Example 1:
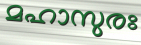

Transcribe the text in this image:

മഹാസുരഃ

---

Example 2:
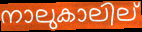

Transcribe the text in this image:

നാലുകാലില്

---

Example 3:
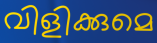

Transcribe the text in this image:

വിളിക്കുമെ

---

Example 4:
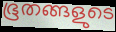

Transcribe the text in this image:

ഭൂതങ്ങളുടെ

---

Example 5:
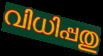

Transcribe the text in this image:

വിധിപ്പതു